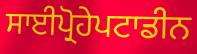
ਸਾਈਪ੍ਰੋਹੇਪਟਾਡੀਨ